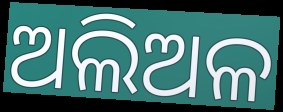
ଅଲିଅଳ